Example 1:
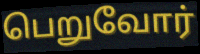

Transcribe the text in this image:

பெறுவோர்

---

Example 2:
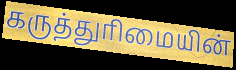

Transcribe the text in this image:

கருத்துரிமையின்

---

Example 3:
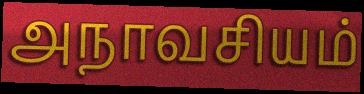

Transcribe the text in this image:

அநாவசியம்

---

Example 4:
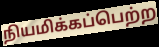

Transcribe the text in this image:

நியமிக்கப்பெற்ற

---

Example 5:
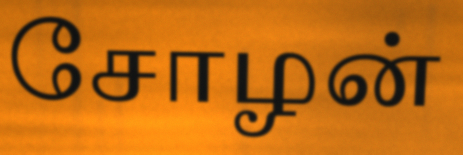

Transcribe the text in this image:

சோழன்